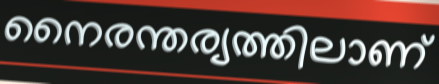
നൈരന്തര്യത്തിലാണ്